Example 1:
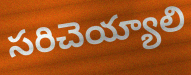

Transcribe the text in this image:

సరిచెయ్యాలి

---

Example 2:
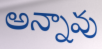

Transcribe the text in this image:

అన్నావు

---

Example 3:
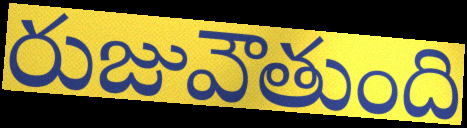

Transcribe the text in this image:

రుజువౌతుంది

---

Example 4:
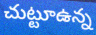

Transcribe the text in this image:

చుట్టూఉన్న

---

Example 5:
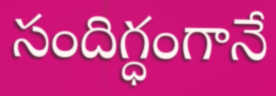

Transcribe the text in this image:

సందిగ్ధంగానే